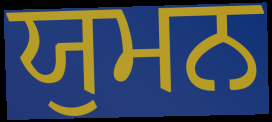
ਯੁਮਨ